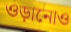
ওড়ানোও